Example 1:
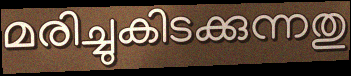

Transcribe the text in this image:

മരിച്ചുകിടക്കുന്നതു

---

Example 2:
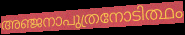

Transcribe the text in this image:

അഞ്ജനാപുത്രനോടിത്ഥം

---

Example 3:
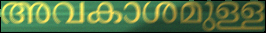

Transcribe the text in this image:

അവകാശമുള്ള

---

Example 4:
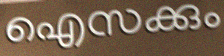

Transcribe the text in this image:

ഐസക്കും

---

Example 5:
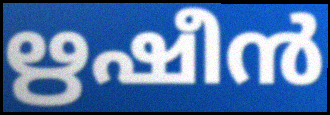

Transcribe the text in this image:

ഋഷീൻ